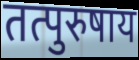
तत्पुरुषाय